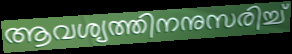
ആവശ്യത്തിനനുസരിച്ച്